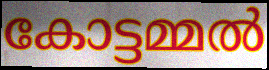
കോട്ടമ്മൽ